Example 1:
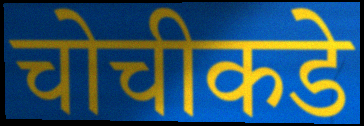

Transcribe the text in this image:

चोचीकडे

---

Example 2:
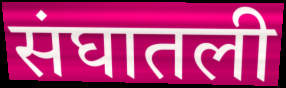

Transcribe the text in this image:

संघातली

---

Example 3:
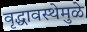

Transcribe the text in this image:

वृद्धावस्थेमुळे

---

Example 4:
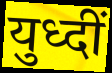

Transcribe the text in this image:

युध्दीं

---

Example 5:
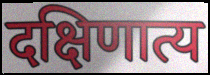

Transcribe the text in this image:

दक्षिणात्य